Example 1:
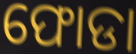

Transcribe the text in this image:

ଫୋଡା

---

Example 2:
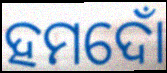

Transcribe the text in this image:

ହମଦୋଁ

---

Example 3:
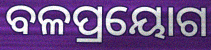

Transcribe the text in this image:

ବଳପ୍ରୟୋଗ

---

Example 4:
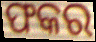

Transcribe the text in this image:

ଫକର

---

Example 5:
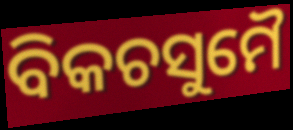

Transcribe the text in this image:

ବିକଚସୁମୈ